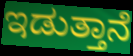
ಇಡುತ್ತಾನೆ